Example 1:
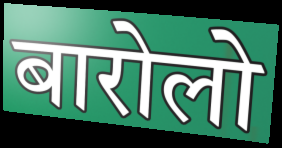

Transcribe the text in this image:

बारोलो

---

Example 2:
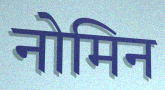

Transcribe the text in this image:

नोमिन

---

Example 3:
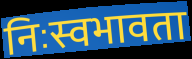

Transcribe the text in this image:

निःस्वभावता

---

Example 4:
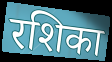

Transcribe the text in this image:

रशिका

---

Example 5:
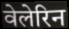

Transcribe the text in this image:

वेलेरिन